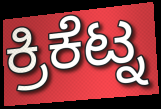
ಕ್ರಿಕೆಟ್ನ